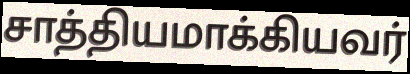
சாத்தியமாக்கியவர்